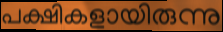
പക്ഷികളായിരുന്നു